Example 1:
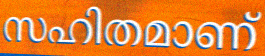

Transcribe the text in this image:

സഹിതമാണ്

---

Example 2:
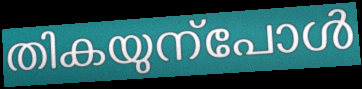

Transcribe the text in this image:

തികയുന്പോൾ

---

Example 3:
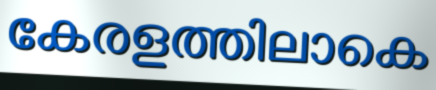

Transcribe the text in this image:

കേരളത്തിലാകെ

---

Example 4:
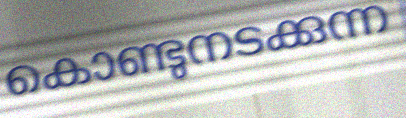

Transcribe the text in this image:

കൊണ്ടുനടക്കുന്ന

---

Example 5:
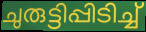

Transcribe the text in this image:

ചുരുട്ടിപ്പിടിച്ച്